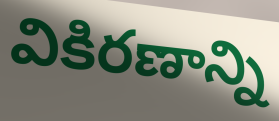
వికిరణాన్ని